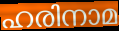
ഹരിനാമ